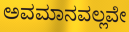
ಅವಮಾನವಲ್ಲವೇ